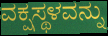
ವಕ್ಷಸ್ಥಳವನ್ನು